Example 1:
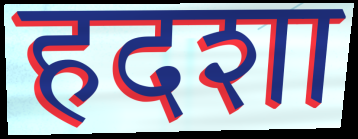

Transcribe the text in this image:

हदशा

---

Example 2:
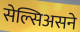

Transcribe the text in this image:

सेल्सिअसने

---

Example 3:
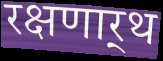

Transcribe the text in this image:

रक्षणार्थ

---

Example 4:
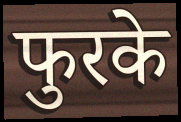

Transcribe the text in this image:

फुरके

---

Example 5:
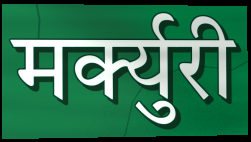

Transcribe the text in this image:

मर्क्युरी